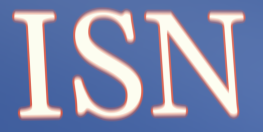
ISN